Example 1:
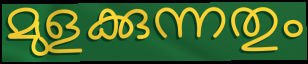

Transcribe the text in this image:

മുളക്കുന്നതും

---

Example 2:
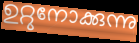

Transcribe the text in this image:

ഉറ്റുനോക്കുന്നു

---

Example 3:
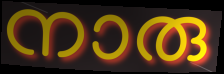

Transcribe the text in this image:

നാരു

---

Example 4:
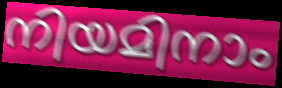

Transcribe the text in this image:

നിയമിനാം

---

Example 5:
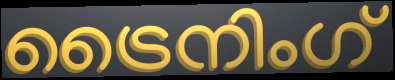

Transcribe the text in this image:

ട്രൈനിംഗ്